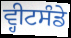
ਵ੍ਹੀਟਸੰਡੇ